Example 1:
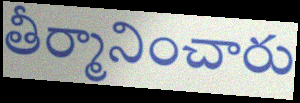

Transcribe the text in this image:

తీర్మానించారు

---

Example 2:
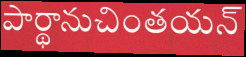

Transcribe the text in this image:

పార్థానుచింతయన్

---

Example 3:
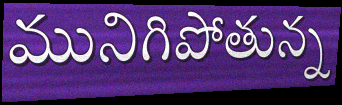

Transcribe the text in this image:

మునిగిపోతున్న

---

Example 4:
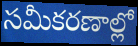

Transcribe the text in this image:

సమీకరణాల్లో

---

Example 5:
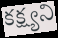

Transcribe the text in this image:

కక్ష్యని